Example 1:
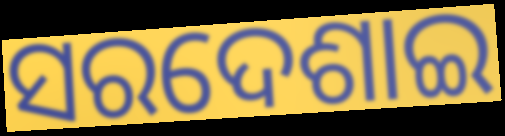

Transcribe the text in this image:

ସରଦେଶାଇ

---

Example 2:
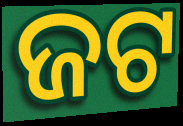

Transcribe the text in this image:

ଜଟ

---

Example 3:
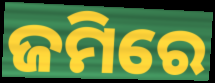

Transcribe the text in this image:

ଜମିରେ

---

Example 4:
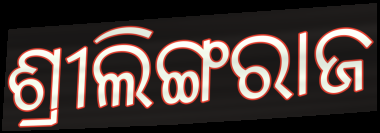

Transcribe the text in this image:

ଶ୍ରୀଲିଙ୍ଗରାଜ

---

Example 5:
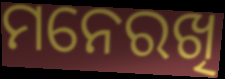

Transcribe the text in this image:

ମନେରଖି